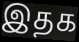
இதக